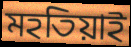
মহতিয়াই